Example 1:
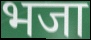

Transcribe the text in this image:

भजा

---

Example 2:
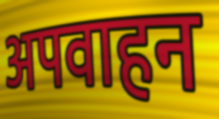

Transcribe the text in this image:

अपवाहन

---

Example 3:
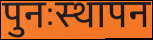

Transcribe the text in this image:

पुनःस्थापन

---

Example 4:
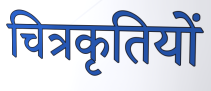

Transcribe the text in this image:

चित्रकृतियों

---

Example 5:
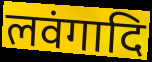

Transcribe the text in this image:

लवंगादि